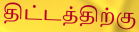
திட்டத்திற்கு